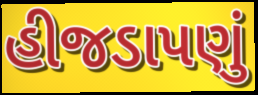
હીજડાપણું